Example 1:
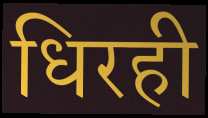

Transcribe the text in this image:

धिरही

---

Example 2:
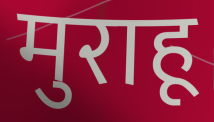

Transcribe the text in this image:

मुराहू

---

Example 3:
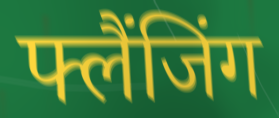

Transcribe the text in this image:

फ्लैंजिंग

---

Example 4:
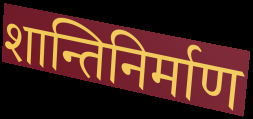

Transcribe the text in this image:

शान्तिनिर्माण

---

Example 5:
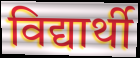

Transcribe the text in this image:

विद्यार्थी